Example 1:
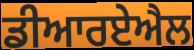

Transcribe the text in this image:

ਡੀਆਰਏਐਲ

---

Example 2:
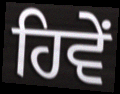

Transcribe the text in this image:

ਹਿਵੇਂ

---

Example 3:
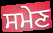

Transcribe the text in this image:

ਸਮੇਣ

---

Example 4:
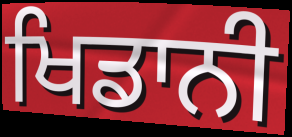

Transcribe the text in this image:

ਖਿਡਾਨੀ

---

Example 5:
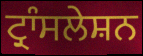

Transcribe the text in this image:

ਟ੍ਰਾੰਸਲੇਸ਼ਨ